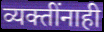
व्यक्तींनाही